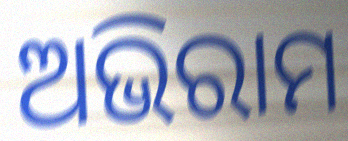
ଅଭିରାମ